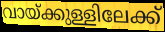
വായ്ക്കുള്ളിലേക്ക്